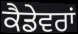
ਕੈਡੇਵਰਾਂ